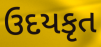
ઉદયકૃત